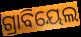
ଗ୍ରାବିୟେଲ